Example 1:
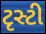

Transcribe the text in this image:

ટૃસ્ટી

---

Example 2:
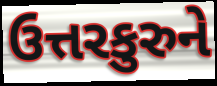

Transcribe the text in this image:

ઉત્તરકુરુને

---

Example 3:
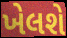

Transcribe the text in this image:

ખેલશે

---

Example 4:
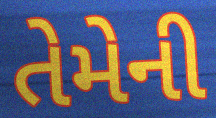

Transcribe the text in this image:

તેમેની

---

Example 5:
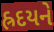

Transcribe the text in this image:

હ્રદયને